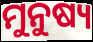
ମୁନୁଷ୍ୟ